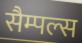
सैम्‍पल्‍स